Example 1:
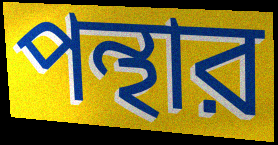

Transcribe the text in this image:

পন্থার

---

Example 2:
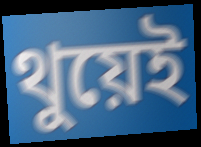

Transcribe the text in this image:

থুয়েই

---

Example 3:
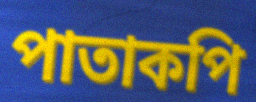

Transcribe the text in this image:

পাতাকপি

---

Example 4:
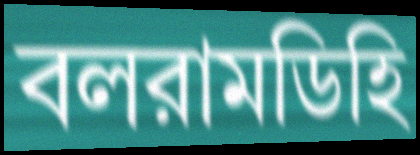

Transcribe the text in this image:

বলরামডিহি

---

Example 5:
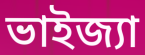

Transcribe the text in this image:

ভাইজ্যা